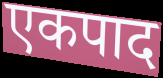
एकपाद